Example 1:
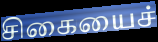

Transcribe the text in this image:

சிகையைச்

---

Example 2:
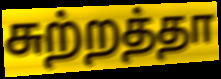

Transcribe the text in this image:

சுற்றத்தா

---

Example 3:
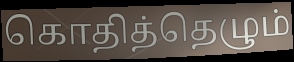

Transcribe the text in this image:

கொதித்தெழும்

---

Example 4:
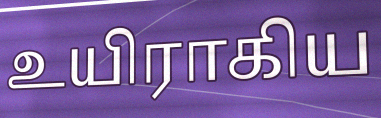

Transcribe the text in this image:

உயிராகிய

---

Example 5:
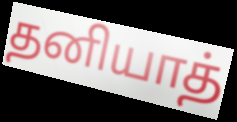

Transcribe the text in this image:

தனியாத்